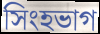
সিংহভাগ